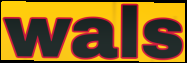
wals